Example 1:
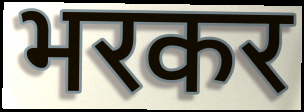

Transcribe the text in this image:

भरकर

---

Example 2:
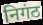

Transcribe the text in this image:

निगंठ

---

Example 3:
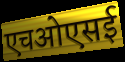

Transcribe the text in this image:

एचओएसई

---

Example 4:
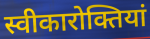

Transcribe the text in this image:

स्वीकारोक्तियां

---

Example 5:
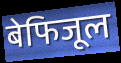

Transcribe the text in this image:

बेफिजूल